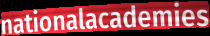
nationalacademies